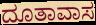
ದೂತಾವಾಸ